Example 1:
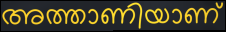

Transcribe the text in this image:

അത്താണിയാണ്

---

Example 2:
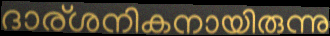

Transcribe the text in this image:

ദാര്ശനികനായിരുന്നു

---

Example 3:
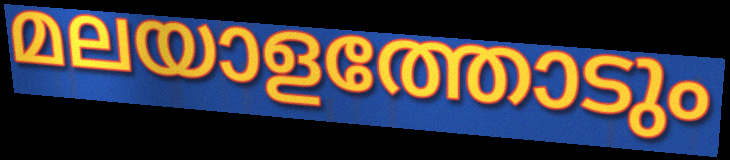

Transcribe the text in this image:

മലയാളത്തോടും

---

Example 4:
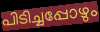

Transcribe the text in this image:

പിടിച്ചപ്പോഴും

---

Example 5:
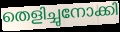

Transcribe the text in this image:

തെളിച്ചുനോക്കി